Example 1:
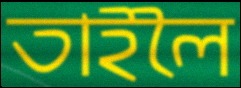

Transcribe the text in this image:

তাইলৈ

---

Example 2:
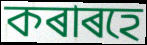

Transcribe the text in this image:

কৰাৰহে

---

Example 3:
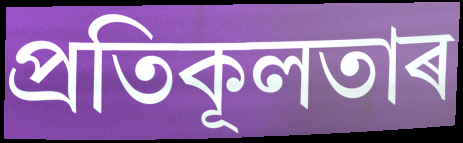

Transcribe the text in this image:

প্ৰতিকূলতাৰ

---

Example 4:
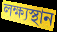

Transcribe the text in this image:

লক্ষ্যস্থান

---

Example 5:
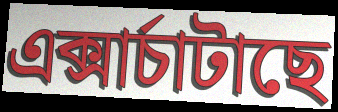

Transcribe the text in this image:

এক্সাৰ্চাটাছে